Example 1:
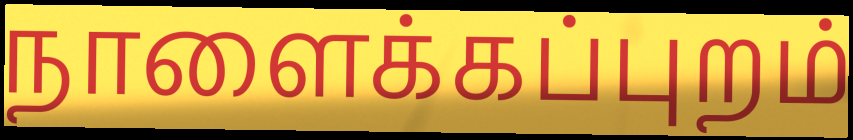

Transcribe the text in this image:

நாளைக்கப்புறம்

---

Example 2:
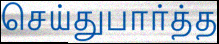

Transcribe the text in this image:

செய்துபார்த்த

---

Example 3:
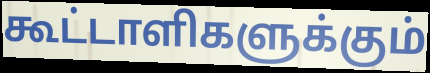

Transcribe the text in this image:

கூட்டாளிகளுக்கும்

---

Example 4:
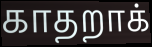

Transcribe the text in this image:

காதறாக்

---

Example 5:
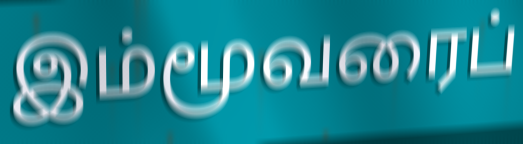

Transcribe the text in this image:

இம்மூவரைப்